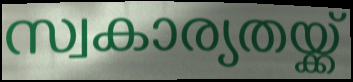
സ്വകാര്യതയ്ക്ക്